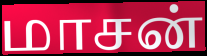
மாசன்